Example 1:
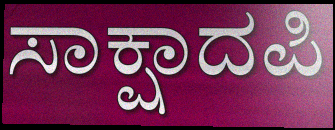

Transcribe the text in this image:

ಸಾಕ್ಷಾದಪಿ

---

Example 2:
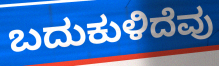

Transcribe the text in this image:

ಬದುಕುಳಿದೆವು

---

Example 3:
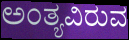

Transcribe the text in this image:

ಅಂತ್ಯವಿರುವ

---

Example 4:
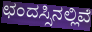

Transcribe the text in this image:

ಛಂದಸ್ಸಿನಲ್ಲಿವೆ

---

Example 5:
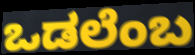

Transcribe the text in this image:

ಒಡಲೆಂಬ